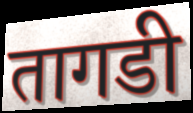
तागडी